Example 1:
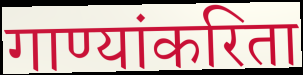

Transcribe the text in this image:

गाण्यांकरिता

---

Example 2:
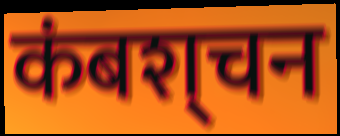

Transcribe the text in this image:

कंबश्चन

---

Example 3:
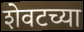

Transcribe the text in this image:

शेवटच्या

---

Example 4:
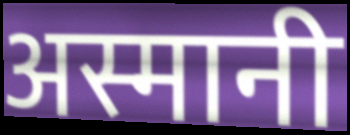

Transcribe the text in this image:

अस्मानी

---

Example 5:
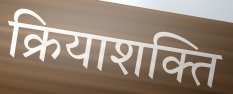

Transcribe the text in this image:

क्रियाशक्ति